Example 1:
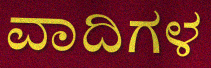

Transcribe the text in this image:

ವಾದಿಗಳ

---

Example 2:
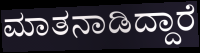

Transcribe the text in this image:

ಮಾತನಾಡಿದ್ದಾರೆ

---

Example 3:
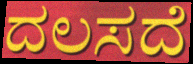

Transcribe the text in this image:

ದಲಸದೆ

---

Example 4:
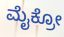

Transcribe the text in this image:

ಮೈಕ್ರೋ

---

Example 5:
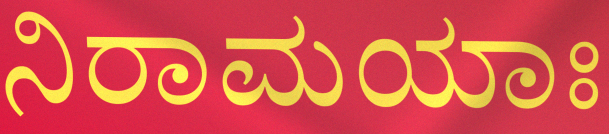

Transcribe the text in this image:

ನಿರಾಮಯಾಃ